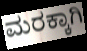
ಮರಕ್ಕಾಗಿ